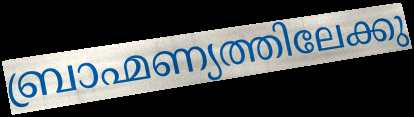
ബ്രാഹ്മണ്യത്തിലേക്കു